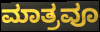
ಮಾತ್ರವೂ